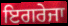
ਇਗਰੇਜਾ